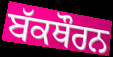
ਬੱਕਥੌਰਨ